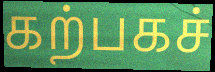
கற்பகச்